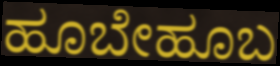
ಹೂಬೇಹೂಬ